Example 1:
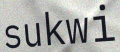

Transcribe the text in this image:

sukwi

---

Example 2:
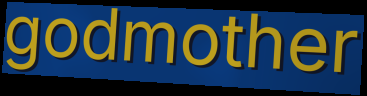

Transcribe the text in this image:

godmother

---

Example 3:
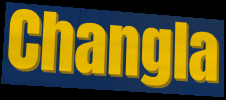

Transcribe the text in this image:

Changla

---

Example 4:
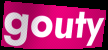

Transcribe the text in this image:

gouty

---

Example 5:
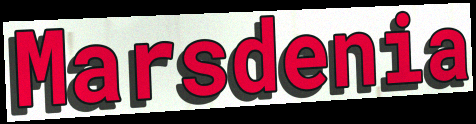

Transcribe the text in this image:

Marsdenia